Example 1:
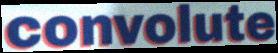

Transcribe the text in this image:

convolute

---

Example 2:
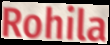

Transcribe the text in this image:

Rohila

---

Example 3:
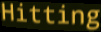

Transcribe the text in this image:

Hitting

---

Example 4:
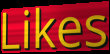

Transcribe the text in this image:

Likes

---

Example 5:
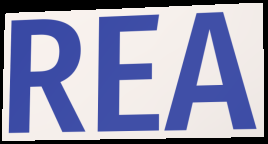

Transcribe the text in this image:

REA